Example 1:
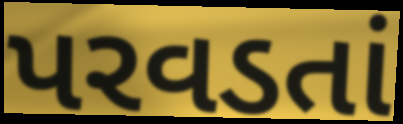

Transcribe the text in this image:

પરવડતાં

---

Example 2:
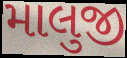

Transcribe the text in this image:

માલુજી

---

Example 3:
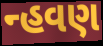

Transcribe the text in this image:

ન્હવણ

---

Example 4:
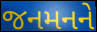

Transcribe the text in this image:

જનમનને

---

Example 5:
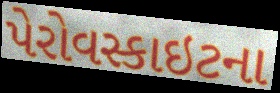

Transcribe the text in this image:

પેરોવસ્કાઇટના